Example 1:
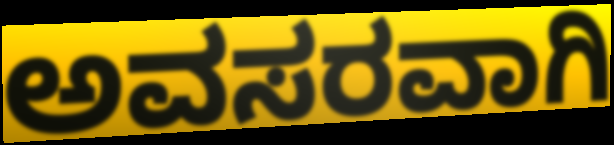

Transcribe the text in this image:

ಅವಸರವಾಗಿ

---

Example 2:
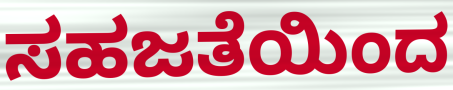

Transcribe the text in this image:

ಸಹಜತೆಯಿಂದ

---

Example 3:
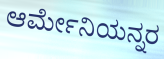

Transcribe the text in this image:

ಆರ್ಮೇನಿಯನ್ನರ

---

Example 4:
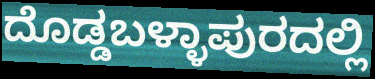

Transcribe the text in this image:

ದೊಡ್ಡಬಳ್ಳಾಪುರದಲ್ಲಿ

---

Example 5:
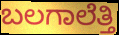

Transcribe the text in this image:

ಬಲಗಾಲೆತ್ತಿ